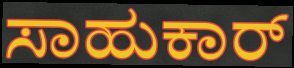
ಸಾಹುಕಾರ್